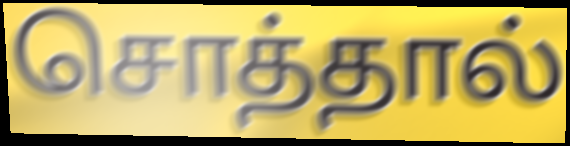
சொத்தால்